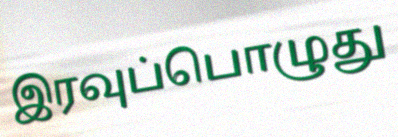
இரவுப்பொழுது